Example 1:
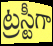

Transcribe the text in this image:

ట్రస్టీగా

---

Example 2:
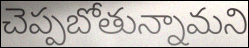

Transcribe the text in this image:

చెప్పబోతున్నామని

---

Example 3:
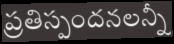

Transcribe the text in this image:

ప్రతిస్పందనలన్నీ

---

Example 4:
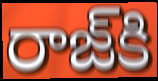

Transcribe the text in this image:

రాజ్‌కి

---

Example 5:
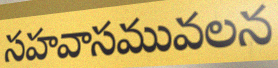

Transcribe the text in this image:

సహవాసమువలన